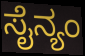
ಸೈನ್ಯಂ